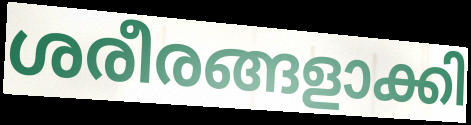
ശരീരങ്ങളാക്കി